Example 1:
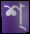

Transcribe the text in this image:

শ্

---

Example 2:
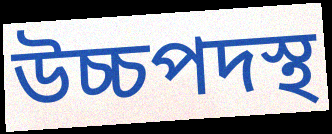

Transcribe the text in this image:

উচ্চপদস্থ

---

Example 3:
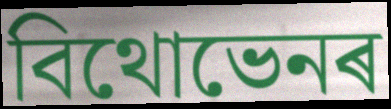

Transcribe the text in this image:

বিথোভেনৰ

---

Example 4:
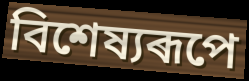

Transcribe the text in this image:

বিশেষ্যৰূপে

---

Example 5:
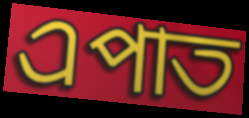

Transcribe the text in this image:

এপাত